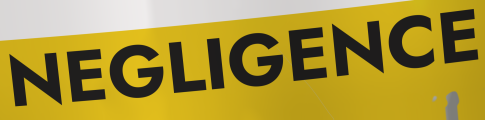
NEGLIGENCE